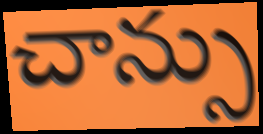
చాన్సు